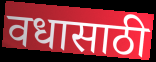
वधासाठी